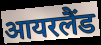
आयरलैंड